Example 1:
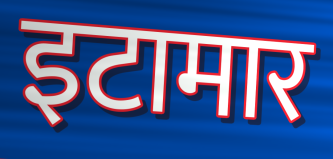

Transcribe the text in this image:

इटामार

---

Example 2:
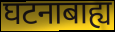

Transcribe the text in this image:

घटनाबाह्य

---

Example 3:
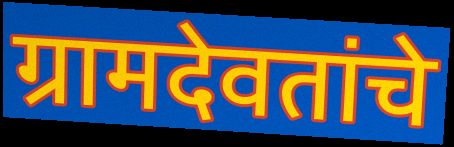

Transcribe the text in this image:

ग्रामदेवतांचे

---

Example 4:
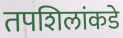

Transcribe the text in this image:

तपशिलांकडे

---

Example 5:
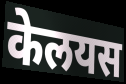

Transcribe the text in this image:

केलयस